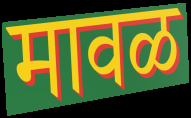
मावळ